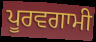
ਪੂਰਵਗਾਮੀ